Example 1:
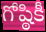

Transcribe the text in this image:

గోష్ఠికీ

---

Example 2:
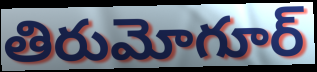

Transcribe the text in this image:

తిరుమోగూర్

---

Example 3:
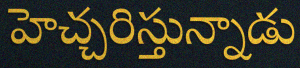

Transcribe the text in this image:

హెచ్చరిస్తున్నాడు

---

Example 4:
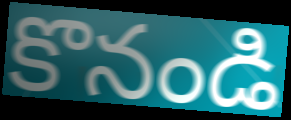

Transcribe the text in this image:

కొనండి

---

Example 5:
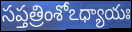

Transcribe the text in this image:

సప్తత్రింశోఽధ్యాయః